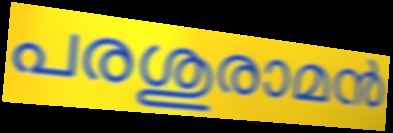
പരശുരാമൻ